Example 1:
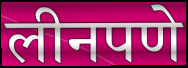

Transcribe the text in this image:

लीनपणे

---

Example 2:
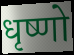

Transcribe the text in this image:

धृष्णो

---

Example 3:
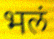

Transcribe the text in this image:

भलं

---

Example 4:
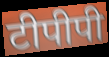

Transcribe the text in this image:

टीपीपी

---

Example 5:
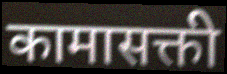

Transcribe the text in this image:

कामासक्ती